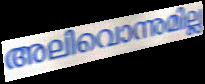
അലിവൊന്നുമില്ല